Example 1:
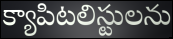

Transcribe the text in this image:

క్యాపిటలిస్టులను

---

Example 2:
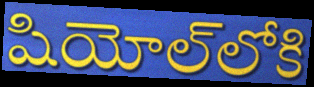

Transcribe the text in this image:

షియోల్‌లోకి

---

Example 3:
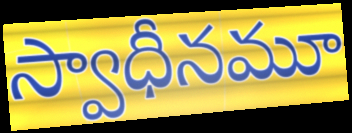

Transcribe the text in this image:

స్వాధీనమూ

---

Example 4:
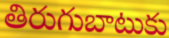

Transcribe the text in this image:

తిరుగుబాటుకు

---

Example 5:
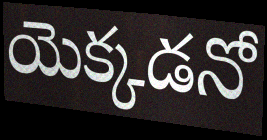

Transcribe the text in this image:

యెక్కడనో